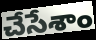
చేసేశాం